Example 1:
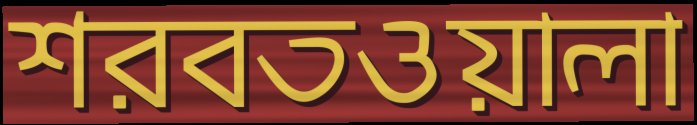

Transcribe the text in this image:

শরবতওয়ালা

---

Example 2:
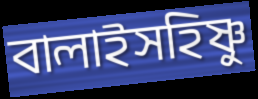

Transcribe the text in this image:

বালাইসহিষ্ণু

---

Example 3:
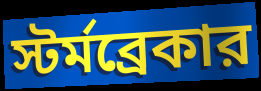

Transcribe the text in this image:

স্টর্মব্রেকার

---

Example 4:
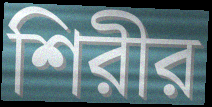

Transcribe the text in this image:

শিরীর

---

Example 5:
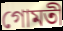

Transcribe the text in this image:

গোমতী